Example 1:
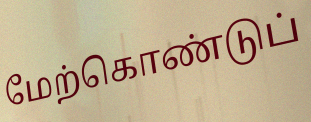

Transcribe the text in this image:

மேற்கொண்டுப்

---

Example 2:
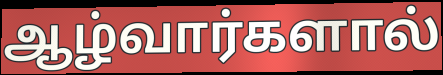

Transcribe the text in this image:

ஆழ்வார்களால்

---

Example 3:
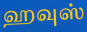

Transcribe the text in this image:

ஹவுஸ்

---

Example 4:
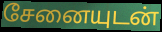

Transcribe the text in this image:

சேனையுடன்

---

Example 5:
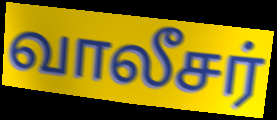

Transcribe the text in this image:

வாலீசர்